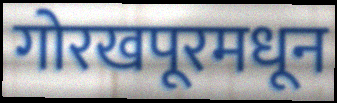
गोरखपूरमधून